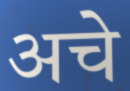
अचे